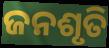
ଜନଶୃତି